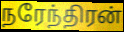
நரேந்திரன்